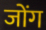
जोंग